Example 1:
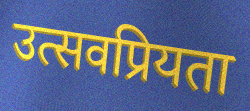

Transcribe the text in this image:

उत्सवप्रियता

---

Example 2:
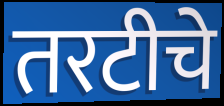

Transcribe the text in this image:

तरटीचे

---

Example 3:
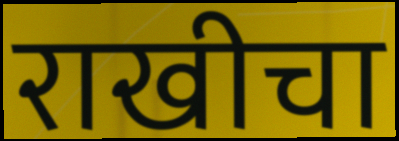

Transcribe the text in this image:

राखीचा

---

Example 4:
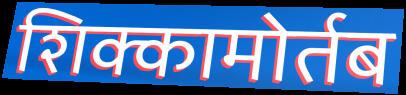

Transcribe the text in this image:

शिक्कामोर्तब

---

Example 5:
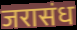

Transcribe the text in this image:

जरासंध